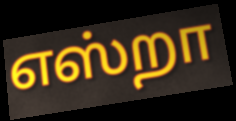
எஸ்றா